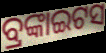
ବ୍ରଙ୍କାଇଟସ